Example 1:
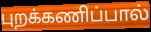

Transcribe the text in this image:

புறக்கணிப்பால்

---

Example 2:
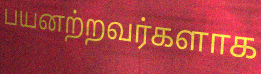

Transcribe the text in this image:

பயனற்றவர்களாக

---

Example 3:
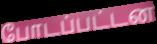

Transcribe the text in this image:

போடப்பட்டன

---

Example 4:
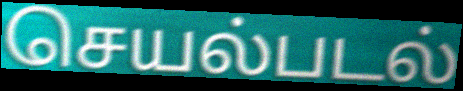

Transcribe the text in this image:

செயல்படல்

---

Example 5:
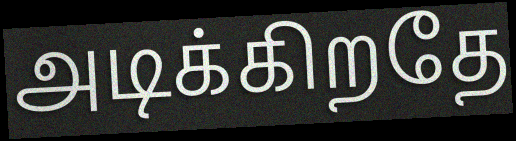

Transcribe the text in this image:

அடிக்கிறதே